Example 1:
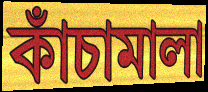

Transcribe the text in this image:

কাঁচামালা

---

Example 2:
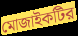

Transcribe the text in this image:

মোজাইকটির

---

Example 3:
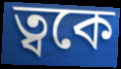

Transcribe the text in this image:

ত্বকে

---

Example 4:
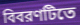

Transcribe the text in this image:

বিবরণটিতে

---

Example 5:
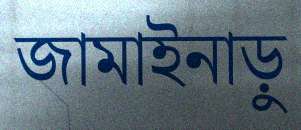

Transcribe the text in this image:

জামাইনাড়ু